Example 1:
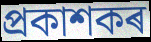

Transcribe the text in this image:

প্ৰকাশকৰ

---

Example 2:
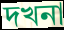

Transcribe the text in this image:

দখনা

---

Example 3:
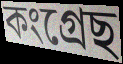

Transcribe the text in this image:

কংগ্ৰেছ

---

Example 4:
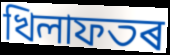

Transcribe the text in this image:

খিলাফতৰ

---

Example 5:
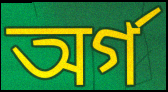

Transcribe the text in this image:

অৰ্গ